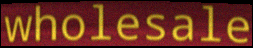
wholesale